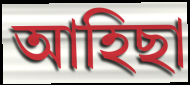
আহিছা